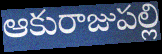
ఆకురాజుపల్లి